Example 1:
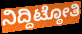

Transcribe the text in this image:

ನಿದ್ದಿಟ್ಠೋತಿ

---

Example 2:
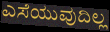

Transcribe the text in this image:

ಎಸೆಯುವುದಿಲ್ಲ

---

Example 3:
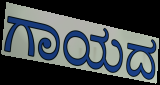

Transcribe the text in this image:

ಗಾಯದ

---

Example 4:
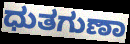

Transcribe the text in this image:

ಧುತಗುಣಾ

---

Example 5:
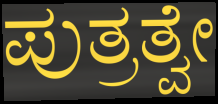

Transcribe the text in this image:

ಪುತ್ರತ್ವೇ